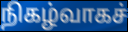
நிகழ்வாகச்